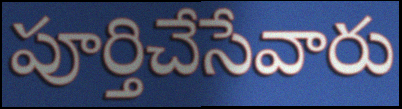
పూర్తిచేసేవారు